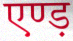
एण्ड़